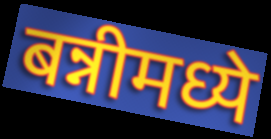
बन्नीमध्ये